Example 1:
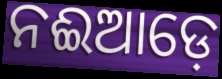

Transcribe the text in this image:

ନଈଆଡ଼େ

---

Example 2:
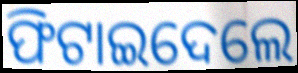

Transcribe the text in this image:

ଫିଟାଇଦେଲେ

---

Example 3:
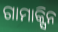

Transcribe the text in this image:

ଗାମାକ୍ସିନ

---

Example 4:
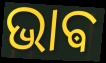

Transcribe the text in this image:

ଭାଵ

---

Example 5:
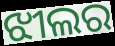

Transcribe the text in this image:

ଝୀଲର